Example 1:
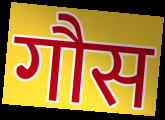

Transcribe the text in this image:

गौस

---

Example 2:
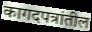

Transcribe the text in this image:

कागदपत्रांतील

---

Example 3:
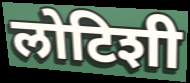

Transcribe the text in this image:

लोटिशी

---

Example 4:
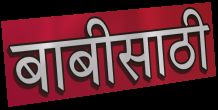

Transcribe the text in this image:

बाबीसाठी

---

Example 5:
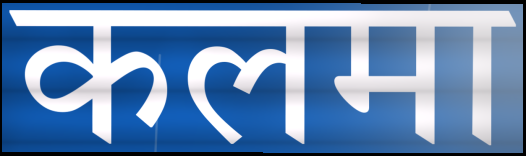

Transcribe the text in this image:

कलमा